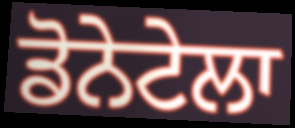
ਡੋਨੇਟੇਲਾ